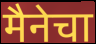
मैनेचा